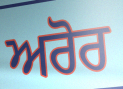
ਅਰੋਰ